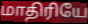
மாதிரியே